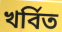
খর্বিত